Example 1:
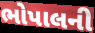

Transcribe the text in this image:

ભોપાલની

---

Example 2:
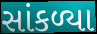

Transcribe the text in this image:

સાંકળ્યા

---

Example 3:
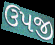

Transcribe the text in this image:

ઉપજી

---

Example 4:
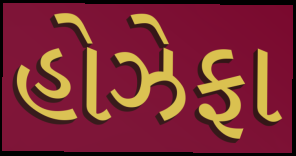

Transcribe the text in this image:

હોઝેફા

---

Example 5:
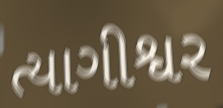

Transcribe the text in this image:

ત્યાગીશ્વર